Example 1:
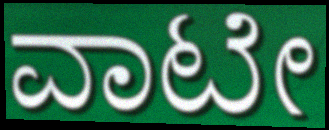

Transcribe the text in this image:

ವಾಟೇ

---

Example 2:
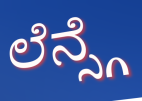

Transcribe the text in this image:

ಲೆನ್ಸ್ಗೆ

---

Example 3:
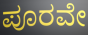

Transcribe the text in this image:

ಪೂರವೇ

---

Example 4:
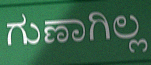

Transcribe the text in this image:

ಗುಣಾಗಿಲ್ಲ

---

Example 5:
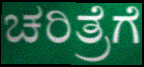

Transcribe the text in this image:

ಚರಿತ್ರೆಗೆ